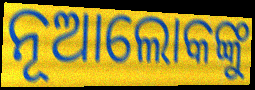
ନୂଆଲୋକଙ୍କୁ